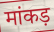
मांकड़